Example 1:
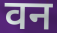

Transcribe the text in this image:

वन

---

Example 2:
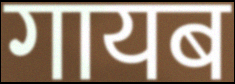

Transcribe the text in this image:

गायब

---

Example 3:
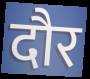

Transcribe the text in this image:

दौर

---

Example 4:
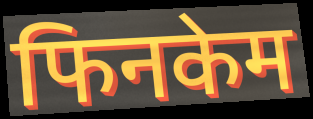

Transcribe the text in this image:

फिनकेम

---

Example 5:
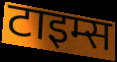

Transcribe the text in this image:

टाइम्स